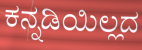
ಕನ್ನಡಿಯಿಲ್ಲದ